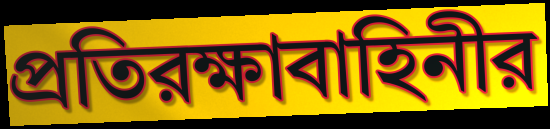
প্রতিরক্ষাবাহিনীর